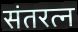
संतरत्न